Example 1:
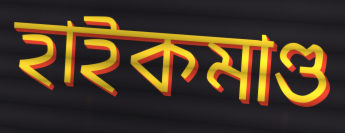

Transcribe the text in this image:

হাইকমাণ্ড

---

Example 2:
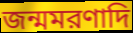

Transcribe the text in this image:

জন্মমরণাদি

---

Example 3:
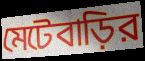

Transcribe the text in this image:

মেটেবাড়ির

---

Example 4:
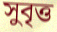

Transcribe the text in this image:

সুবৃত্ত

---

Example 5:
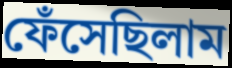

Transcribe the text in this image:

ফেঁসেছিলাম